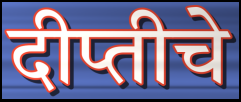
दीप्तीचे